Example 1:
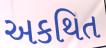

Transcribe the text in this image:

અકથિત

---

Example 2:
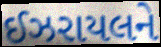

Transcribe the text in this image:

ઈઝરાયલને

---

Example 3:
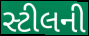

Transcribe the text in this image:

સ્ટીલની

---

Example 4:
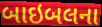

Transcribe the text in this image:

બાઇબલના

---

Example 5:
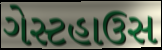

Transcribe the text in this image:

ગેસ્ટહાઉસ